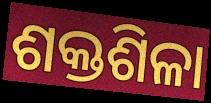
ଶକ୍ତଶିଳା